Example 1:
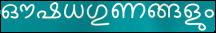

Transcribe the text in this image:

ഔഷധഗുണങ്ങളും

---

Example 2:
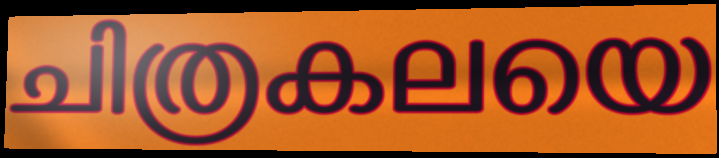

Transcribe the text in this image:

ചിത്രകലയെ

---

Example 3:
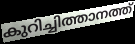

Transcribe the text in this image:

കുറിച്ചിത്താനത്ത്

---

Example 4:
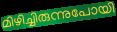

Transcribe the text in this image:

മിഴിച്ചിരുന്നുപോയി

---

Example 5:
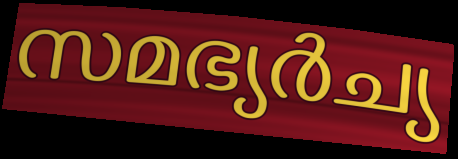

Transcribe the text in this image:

സമഭ്യർച്യ